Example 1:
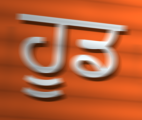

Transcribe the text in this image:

ਹੂਡ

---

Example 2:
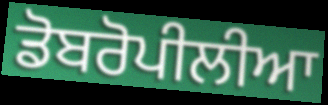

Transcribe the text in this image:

ਡੋਬਰੋਪੀਲੀਆ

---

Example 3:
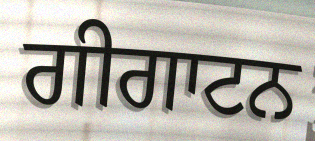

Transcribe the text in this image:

ਗੀਗਾਟਨ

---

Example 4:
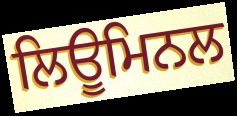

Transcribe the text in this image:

ਲਿਊਮਿਨਲ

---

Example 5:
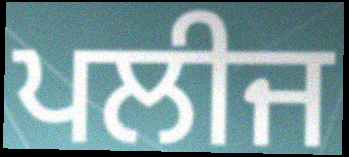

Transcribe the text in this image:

ਪਲੀਜ